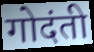
गोदंती